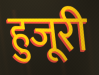
हुजूरी